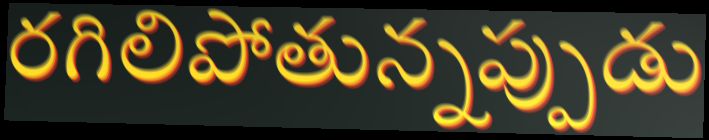
రగిలిపోతున్నప్పుడు